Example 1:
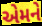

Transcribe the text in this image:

એમને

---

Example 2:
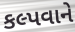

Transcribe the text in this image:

કલ્પવાને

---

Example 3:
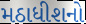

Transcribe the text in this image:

મઠાધીશનો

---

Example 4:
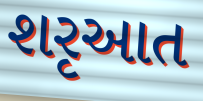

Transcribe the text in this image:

શરૃઆત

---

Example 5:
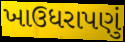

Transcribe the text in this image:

ખાઉધરાપણું